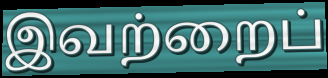
இவற்றைப்